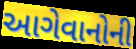
આગેવાનોની